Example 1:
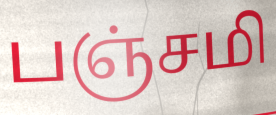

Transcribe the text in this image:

பஞ்சமி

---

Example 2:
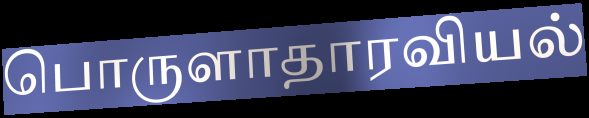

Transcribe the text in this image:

பொருளாதாரவியல்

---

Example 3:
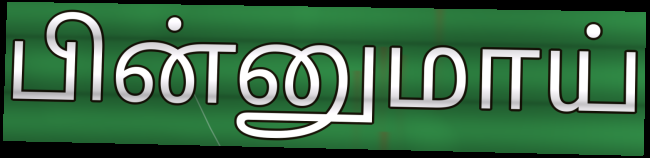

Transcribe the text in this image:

பின்னுமாய்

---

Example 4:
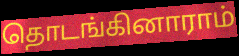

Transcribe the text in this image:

தொடங்கினாராம்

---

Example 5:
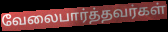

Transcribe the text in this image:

வேலைபார்த்தவர்கள்